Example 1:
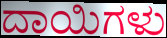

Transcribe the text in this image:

ದಾಯಿಗಳು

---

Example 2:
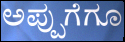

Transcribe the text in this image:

ಅಪ್ಪುಗೆಗೂ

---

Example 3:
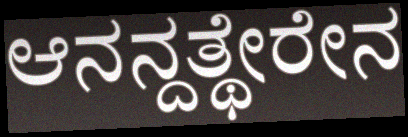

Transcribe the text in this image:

ಆನನ್ದತ್ಥೇರೇನ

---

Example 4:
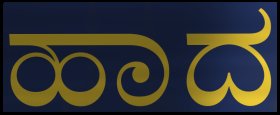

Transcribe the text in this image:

ಹಾದ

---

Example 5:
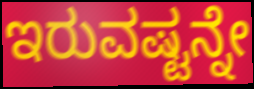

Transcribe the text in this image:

ಇರುವಷ್ಟನ್ನೇ